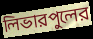
লিভারপুলের